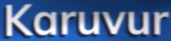
Karuvur